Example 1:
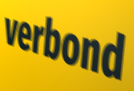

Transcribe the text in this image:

verbond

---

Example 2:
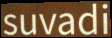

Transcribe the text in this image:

suvadi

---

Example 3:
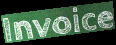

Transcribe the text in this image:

Invoice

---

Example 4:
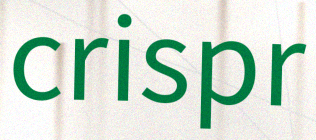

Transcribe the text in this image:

crispr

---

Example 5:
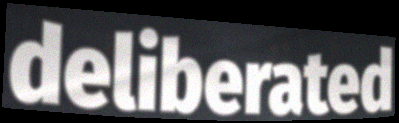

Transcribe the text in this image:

deliberated